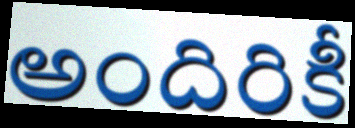
అందిరికీ